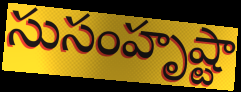
సుసంహృష్టా